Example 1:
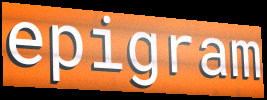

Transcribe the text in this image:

epigram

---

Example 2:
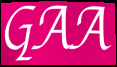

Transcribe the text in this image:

GAA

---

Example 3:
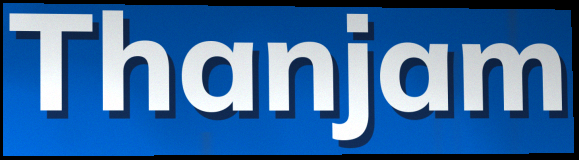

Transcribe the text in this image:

Thanjam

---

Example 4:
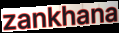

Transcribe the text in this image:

zankhana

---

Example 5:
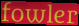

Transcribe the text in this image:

fowler